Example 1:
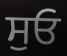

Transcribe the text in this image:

ਸੁਓ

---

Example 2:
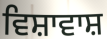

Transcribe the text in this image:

ਵਿਸ਼ਾਵਾਸ਼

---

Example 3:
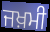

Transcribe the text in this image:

ਜਖ਼ਮੀ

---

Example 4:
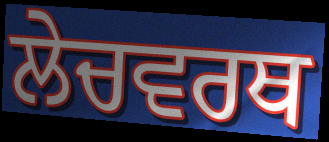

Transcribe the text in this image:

ਲੇਚਵਰਥ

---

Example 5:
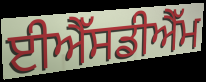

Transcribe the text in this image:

ਈਐੱਸਡੀਐੱਮ